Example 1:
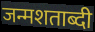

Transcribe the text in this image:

जन्मशताब्दी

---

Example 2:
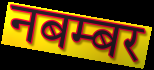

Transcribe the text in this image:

नबम्बर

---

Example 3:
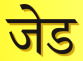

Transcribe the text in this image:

जेड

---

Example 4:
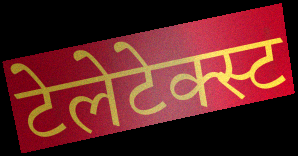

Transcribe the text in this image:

टेलेटेक्स्ट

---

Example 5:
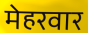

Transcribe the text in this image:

मेहरवार